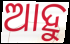
ଆହୁ